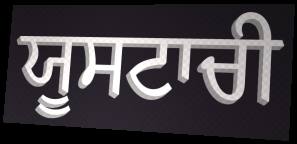
ਯੂਸਟਾਚੀ